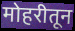
मोहरीतून